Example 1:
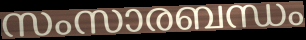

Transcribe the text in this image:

സംസാരബന്ധം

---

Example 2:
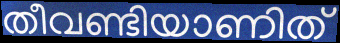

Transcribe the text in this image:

തീവണ്ടിയാണിത്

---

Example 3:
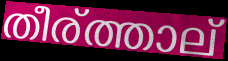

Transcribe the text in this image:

തീര്ത്താല്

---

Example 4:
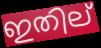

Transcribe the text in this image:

ഇതില്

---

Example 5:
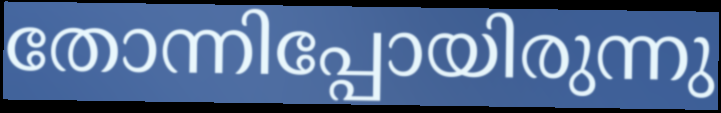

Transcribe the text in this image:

തോന്നിപ്പോയിരുന്നു